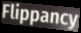
Flippancy